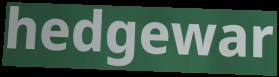
hedgewar